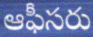
ఆఫీసరు